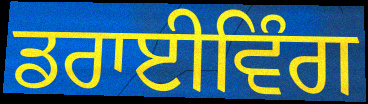
ਡਰਾਈਵਿੰਗ